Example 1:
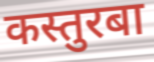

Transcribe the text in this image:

कस्तुरबा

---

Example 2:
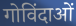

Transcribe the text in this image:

गोविंदाओं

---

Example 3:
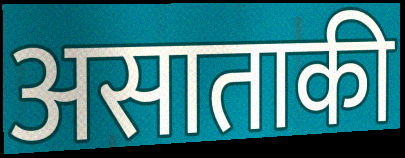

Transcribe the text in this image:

असाताकी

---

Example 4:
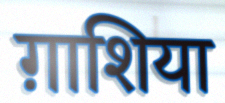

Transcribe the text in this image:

ग़ाशिया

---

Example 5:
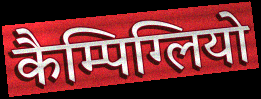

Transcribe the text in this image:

कैम्पिग्लियो